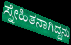
ಸ್ನೇಹಿತನಾಗಿದ್ದನು